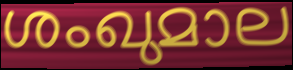
ശംഖുമാല